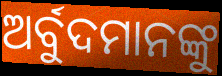
ଅର୍ବୁଦମାନଙ୍କୁ